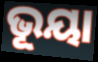
ଭୂୟା